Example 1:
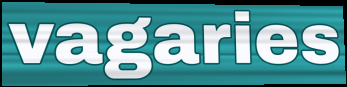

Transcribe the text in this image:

vagaries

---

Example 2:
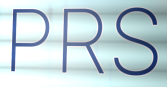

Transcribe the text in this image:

PRS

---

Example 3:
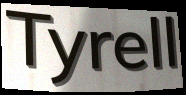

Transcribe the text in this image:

Tyrell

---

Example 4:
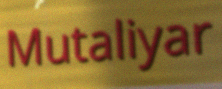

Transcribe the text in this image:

Mutaliyar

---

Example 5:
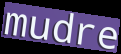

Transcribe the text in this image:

mudre